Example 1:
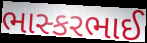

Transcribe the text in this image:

ભાસ્કરભાઈ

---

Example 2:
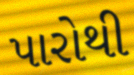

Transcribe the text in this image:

પારોથી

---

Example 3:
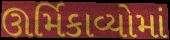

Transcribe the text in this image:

ઊર્મિકાવ્યોમાં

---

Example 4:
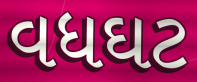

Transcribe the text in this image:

વધઘટ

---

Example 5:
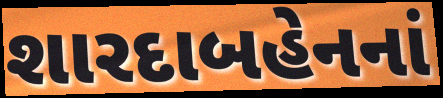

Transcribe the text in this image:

શારદાબહેનનાં